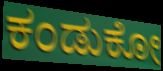
ಕಂಡುಕೋ